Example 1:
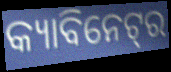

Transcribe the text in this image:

କ୍ୟାବିନେଟ୍‌ର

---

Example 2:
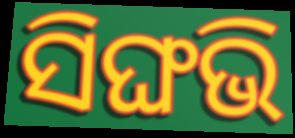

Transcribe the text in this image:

ସିଙ୍ଘଭି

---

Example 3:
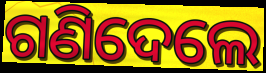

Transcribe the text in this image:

ଗଣିଦେଲେ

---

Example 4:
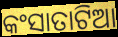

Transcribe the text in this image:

କଂସାତାଟିଆ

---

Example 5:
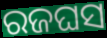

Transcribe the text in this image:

ରଜଘସ